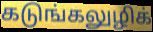
கடுங்கலுழிக்